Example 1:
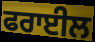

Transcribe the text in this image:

ਫਰਾਈਲ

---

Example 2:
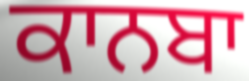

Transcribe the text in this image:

ਕਾਨਬਾ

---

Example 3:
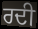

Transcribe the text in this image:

ਰਦੀ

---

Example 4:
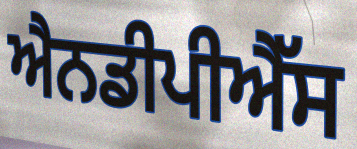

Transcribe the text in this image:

ਐਨਡੀਪੀਐੱਸ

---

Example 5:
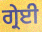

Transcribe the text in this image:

ਗ੍ਰੇਈ